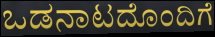
ಒಡನಾಟದೊಂದಿಗೆ